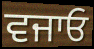
ਵਜਾਓ